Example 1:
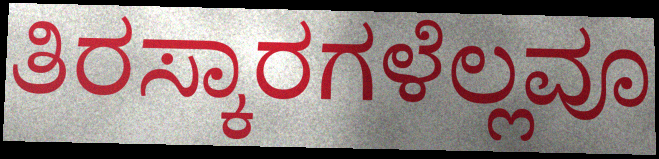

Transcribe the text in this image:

ತಿರಸ್ಕಾರಗಳೆಲ್ಲವೂ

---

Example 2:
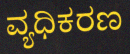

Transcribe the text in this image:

ವ್ಯಧಿಕರಣ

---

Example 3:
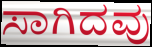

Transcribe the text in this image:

ಸಾಗಿದವು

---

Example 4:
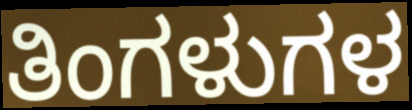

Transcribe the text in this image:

ತಿಂಗಳುಗಳ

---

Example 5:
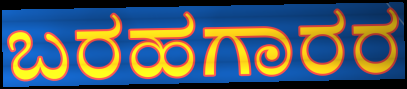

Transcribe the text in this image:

ಬರಹಗಾರರ